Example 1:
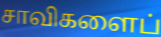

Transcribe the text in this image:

சாவிகளைப்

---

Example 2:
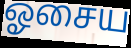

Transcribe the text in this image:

ஓசைய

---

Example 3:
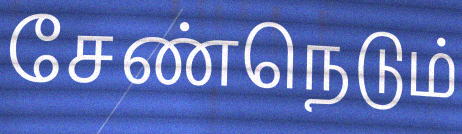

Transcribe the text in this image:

சேண்நெடும்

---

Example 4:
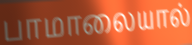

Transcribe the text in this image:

பாமாலையால்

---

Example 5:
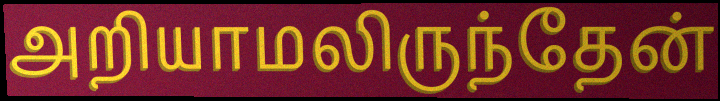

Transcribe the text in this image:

அறியாமலிருந்தேன்